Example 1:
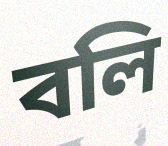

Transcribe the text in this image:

বলি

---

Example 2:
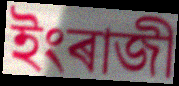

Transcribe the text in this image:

ইংৰাজী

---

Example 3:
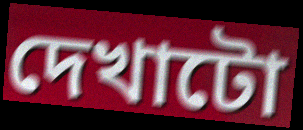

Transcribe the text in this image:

দেখাটো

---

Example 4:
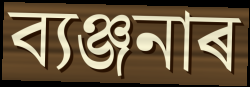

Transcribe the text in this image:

ব্যঞ্জনাৰ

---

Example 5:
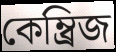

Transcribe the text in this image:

কেম্ব্ৰিজ